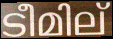
ടീമില്